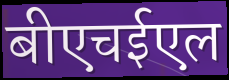
बीएचईएल